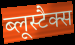
ब्लूस्टैक्स